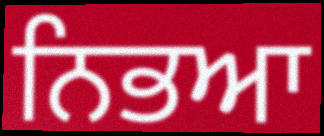
ਨਿਭਆ